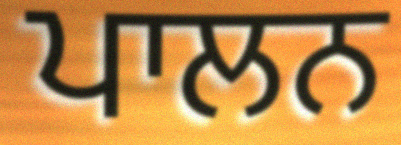
ਪਾਲਨ